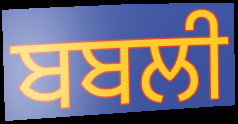
ਬਬਲੀ